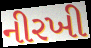
નીરખી